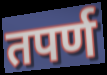
तपर्ण